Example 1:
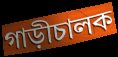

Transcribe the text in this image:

গাড়ীচালক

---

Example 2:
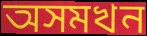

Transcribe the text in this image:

অসমখন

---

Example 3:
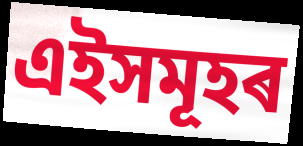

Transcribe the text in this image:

এইসমূহৰ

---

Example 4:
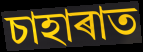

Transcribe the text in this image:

চাহাৰাত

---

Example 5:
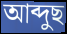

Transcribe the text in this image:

আব্দুছ